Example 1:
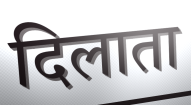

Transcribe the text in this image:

दिलाता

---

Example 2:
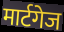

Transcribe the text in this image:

मार्टगेज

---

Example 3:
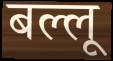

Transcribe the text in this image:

बल्लू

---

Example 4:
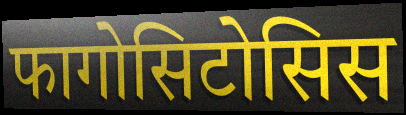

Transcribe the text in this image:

फागोसिटोसिस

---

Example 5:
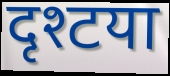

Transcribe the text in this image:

दृश्टया